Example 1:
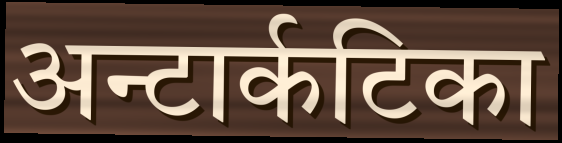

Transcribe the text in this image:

अन्टार्कटिका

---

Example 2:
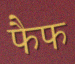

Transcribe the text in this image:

फैफ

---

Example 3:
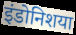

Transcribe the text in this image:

इंडोनिशया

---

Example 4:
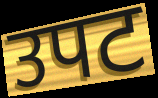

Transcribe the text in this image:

उपट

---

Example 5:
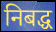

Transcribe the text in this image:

निबद्ध